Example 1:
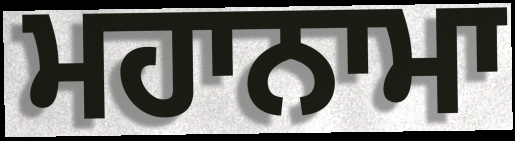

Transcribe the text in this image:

ਮਹਾਨਾਮਾ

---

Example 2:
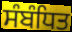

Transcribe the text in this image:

ਸੰਬੰਧਿਤ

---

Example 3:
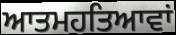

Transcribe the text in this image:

ਆਤਮਹਤਿਆਵਾਂ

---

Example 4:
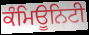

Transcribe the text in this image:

ਕੰਮਿਊਨਿਟੀ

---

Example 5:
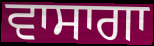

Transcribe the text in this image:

ਵਾਸਾਗਾ